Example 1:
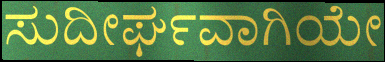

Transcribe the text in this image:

ಸುದೀರ್ಘವಾಗಿಯೇ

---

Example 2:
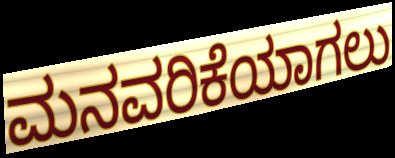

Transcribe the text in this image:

ಮನವರಿಕೆಯಾಗಲು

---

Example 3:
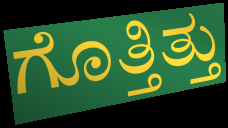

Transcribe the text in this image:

ಗೊತ್ತಿತ್ತು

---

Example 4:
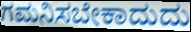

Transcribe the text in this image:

ಗಮನಿಸಬೇಕಾದುದು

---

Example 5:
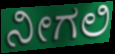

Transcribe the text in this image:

ನೀಗಲಿ